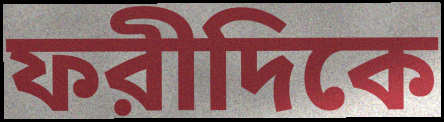
ফরীদিকে